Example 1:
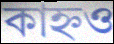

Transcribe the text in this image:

কাহ্নও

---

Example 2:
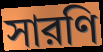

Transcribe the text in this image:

সারণি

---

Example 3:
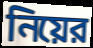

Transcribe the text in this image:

নিয়ের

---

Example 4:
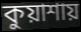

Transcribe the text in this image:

কুয়াশায়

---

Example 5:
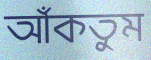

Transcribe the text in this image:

আঁকতুম